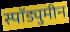
स्पॉड्युमीन